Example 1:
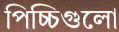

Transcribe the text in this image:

পিচ্চিগুলো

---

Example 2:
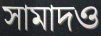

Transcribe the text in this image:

সামাদও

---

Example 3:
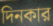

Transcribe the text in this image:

দিনকার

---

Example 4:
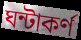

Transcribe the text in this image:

ঘন্টাকর্ণ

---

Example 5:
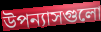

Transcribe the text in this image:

উপন্যাসগুলো